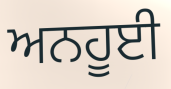
ਅਨਹੂਈ